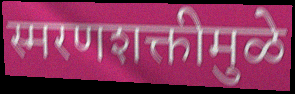
स्मरणशक्तीमुळे